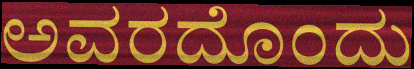
ಅವರದೊಂದು